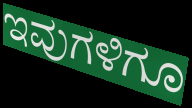
ಇವುಗಳಿಗೂ